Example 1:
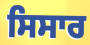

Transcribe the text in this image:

ਸਿਸਾਰ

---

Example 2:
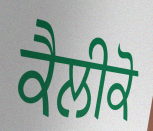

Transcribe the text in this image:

ਕੈਲੀਕੋ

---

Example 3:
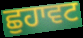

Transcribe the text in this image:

ਛੁਹਾਵਟ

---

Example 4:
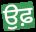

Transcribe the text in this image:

ਉਫ਼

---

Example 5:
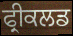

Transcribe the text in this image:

ਫ੍ਰੀਕਲਡ